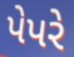
પેપરે